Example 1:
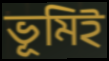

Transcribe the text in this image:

ভূমিই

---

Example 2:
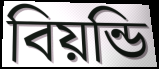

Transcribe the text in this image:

বিয়ন্ডি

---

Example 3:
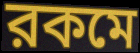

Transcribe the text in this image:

রকমে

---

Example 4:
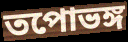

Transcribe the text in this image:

তপোভঙ্গ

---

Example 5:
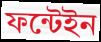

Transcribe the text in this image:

ফন্টেইন